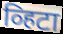
व्हिटा